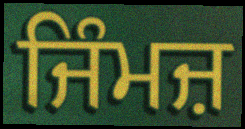
ਜਿੰਮਜ਼